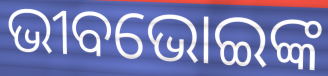
ଭୀବଭୋଇଙ୍କ